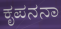
ಕೃಪನನಾ